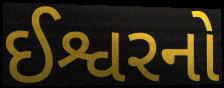
ઈશ્વરનો